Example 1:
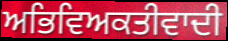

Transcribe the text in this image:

ਅਭਿਵਿਅਕਤੀਵਾਦੀ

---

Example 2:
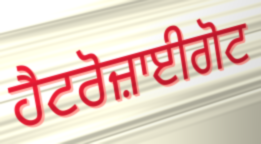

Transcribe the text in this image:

ਹੈਟਰੋਜ਼ਾਈਗੋਟ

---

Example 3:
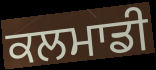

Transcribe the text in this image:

ਕਲਮਾਡੀ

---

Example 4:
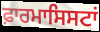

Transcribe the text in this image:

ਫ਼ਾਰਮਾਸਿਸਟਾਂ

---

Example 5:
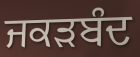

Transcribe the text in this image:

ਜਕੜਬੰਦ